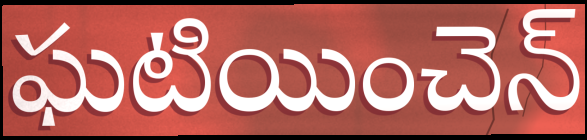
ఘటియించెన్